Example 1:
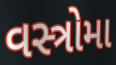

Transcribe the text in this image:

વસ્ત્રોમા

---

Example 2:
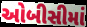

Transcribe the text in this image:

ઓબીસીમાં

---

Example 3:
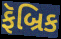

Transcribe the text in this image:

ફૅબ્રિક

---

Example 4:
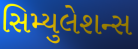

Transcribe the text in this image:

સિમ્યુલેશન્સ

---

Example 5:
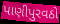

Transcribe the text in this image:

પાણીપુરવઠો